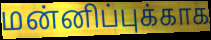
மன்னிப்புக்காக